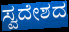
ಸ್ವದೇಶದ